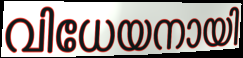
വിധേയനായി